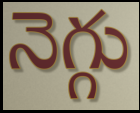
నెగ్గు